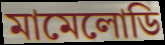
মামেলোডি